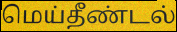
மெய்தீண்டல்